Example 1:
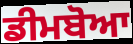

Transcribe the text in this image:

ਡੀਮਬੋਆ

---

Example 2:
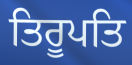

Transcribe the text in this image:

ਤਿਰੂਪਤਿ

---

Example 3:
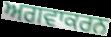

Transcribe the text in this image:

ਅਗਵਾਕਰਨ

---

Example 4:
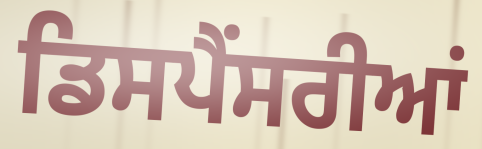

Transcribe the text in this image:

ਡਿਸਪੈਂਸਰੀਆਂ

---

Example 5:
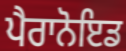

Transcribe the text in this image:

ਪੈਰਾਨੋਇਡ